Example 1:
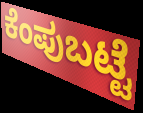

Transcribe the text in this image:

ಕೆಂಪುಬಟ್ಟೆ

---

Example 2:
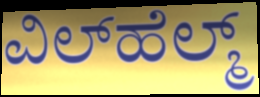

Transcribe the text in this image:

ವಿಲ್‌ಹೆಲ್ಮ್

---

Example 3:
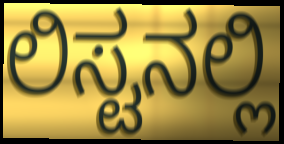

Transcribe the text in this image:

ಲಿಸ್ಟನಲ್ಲಿ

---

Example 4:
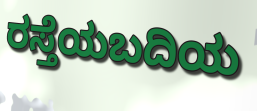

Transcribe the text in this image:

ರಸ್ತೆಯಬದಿಯ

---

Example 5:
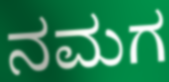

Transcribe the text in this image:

ನಮಗ